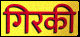
गिरकी